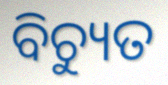
ବିଚ୍ୟୁତ